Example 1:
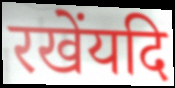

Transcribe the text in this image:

रखेंयदि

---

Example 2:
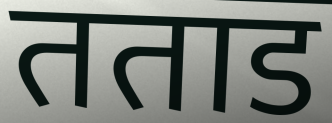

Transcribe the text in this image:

तताड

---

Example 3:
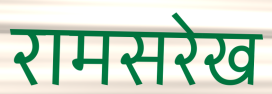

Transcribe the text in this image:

रामसरेख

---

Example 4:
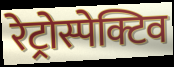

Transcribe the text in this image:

रेट्रोस्पेक्टिव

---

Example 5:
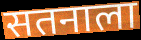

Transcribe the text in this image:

सतनाला